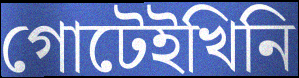
গোটেইখিনি